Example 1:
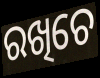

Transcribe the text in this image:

ରଖିଚେ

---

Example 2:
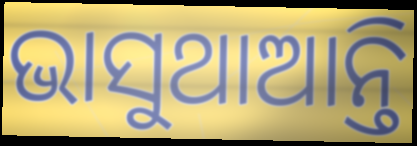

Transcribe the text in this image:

ଭାସୁଥାଆନ୍ତି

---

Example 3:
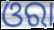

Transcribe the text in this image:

ଓରା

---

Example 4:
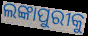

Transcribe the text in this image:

ଲଙ୍କାପୁରୀକୁ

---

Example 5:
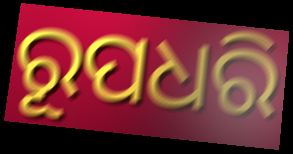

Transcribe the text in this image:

ରୂପଧରି